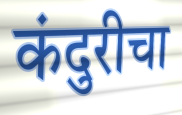
कंदुरीचा